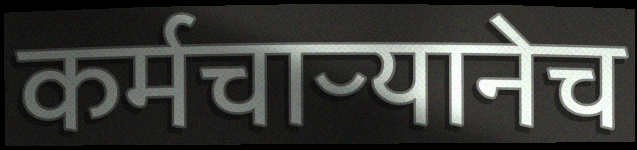
कर्मचाऱ्यानेच